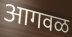
आगवळ